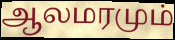
ஆலமரமும்